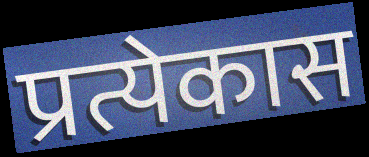
प्रत्येकास